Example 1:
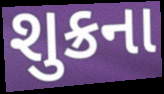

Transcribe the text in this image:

શુક્રના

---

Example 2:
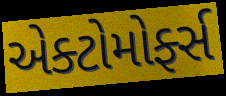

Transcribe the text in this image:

એક્ટોમોર્ફ્સ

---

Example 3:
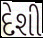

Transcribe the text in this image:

દેશી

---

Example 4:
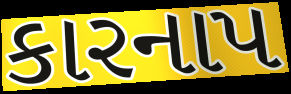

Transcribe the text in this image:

કારનાપ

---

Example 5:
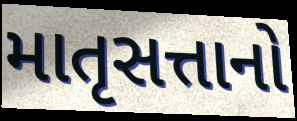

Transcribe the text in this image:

માતૃસત્તાનો